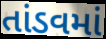
તાંડવમાં